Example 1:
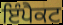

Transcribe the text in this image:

ਇੰਪੈਕਟ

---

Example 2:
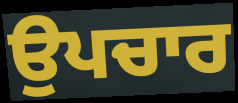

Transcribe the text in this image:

ਉਪਚਾਰ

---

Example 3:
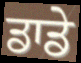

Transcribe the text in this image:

ਡਾਡੇ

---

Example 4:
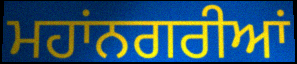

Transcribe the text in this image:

ਮਹਾਂਨਗਰੀਆਂ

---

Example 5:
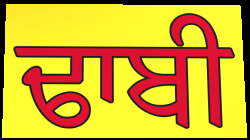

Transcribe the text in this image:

ਢਾਬੀ